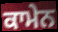
ਕਾਮੇਨ